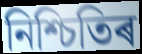
নিশ্চিতিৰ